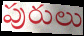
పురులు